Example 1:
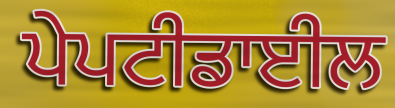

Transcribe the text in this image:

ਪੇਪਟੀਡਾਈਲ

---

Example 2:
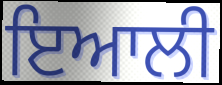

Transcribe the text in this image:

ਇਆਲੀ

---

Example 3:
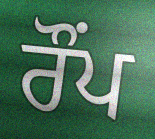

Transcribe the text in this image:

ਰੌਂਪ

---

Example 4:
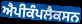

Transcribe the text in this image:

ਐਪੀਕੰਪਲੈਕਸਨ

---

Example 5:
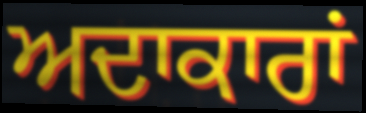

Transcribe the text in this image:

ਅਦਾਕਾਰਾਂ